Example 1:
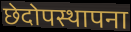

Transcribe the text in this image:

छेदोपस्थापना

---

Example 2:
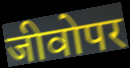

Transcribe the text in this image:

जीवोपर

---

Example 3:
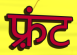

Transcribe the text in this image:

फ़्रंट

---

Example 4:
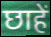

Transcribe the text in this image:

छाहें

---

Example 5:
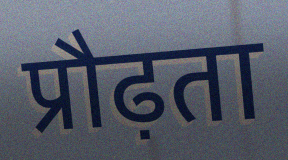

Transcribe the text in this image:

प्रौढ़ता